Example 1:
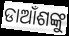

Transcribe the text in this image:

ଡାଆଁଶଙ୍କୁ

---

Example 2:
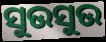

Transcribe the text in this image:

ସୁଉସୁଉ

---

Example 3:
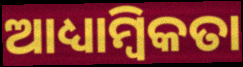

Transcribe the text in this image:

ଆଧ୍ୟାମ୍ବିକତା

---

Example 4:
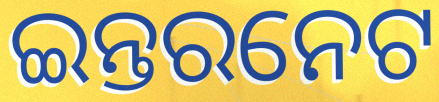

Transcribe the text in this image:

ଇନ୍ତରନେଟ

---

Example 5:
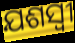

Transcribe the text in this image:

ଯଶସ୍ଵୀ